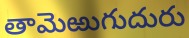
తామెఱుగుదురు